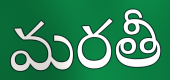
మరతీ